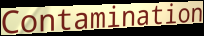
Contamination